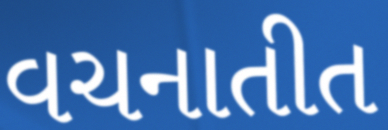
વચનાતીત